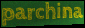
parchina